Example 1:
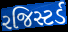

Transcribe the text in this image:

રજિસ્ટર્ડ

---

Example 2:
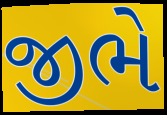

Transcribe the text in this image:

જીભે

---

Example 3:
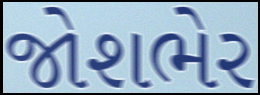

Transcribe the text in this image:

જોશભેર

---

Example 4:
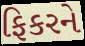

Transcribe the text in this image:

ફિકરને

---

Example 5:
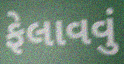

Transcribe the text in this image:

ફેલાવવું